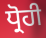
ਧ੍ਰੋਹੀ